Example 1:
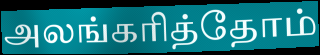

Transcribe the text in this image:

அலங்கரித்தோம்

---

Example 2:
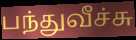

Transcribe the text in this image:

பந்துவீச்சு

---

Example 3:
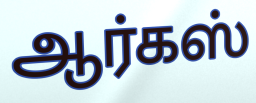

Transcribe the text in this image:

ஆர்கஸ்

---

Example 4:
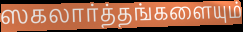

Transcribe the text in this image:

ஸகலார்த்தங்களையும்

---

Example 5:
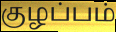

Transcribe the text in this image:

குழப்பம்